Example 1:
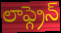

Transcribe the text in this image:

లాఫ్గ్రెన్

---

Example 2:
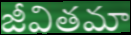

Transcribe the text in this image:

జీవితమా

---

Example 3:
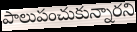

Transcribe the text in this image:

పాలుపంచుకున్నారని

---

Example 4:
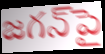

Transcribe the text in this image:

జగన్‌పై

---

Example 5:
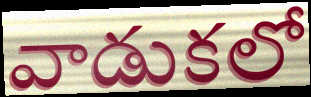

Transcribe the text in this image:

వాడుకలో